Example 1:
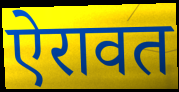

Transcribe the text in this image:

ऐरावत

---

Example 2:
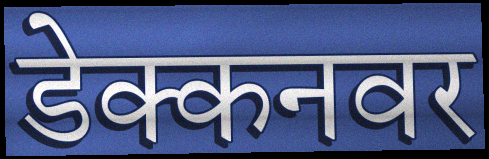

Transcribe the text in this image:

डेक्कनवर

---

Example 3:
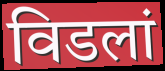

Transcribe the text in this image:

विडलां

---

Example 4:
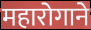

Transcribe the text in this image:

महारोगाने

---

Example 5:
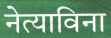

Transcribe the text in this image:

नेत्याविना